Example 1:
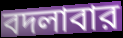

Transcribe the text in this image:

বদলাবার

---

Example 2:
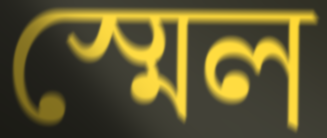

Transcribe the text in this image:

স্মেল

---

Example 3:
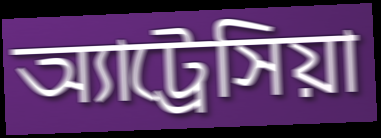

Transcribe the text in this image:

অ্যাট্রেসিয়া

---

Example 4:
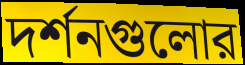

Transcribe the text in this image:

দর্শনগুলোর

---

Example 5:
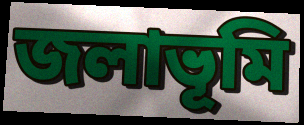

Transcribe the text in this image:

জলাভূমি